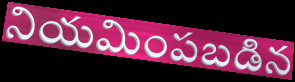
నియమింపబడిన